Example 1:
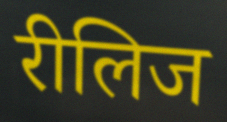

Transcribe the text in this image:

रीलिज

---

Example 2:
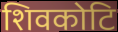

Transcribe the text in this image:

शिवकोटि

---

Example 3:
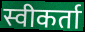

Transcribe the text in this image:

स्वीकर्ता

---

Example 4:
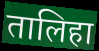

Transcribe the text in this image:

तालिहा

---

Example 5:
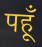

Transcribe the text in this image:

पहूँ